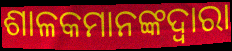
ଶାଳକମାନଙ୍କଦ୍ୱାରା